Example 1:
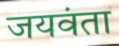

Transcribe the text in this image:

जयवंता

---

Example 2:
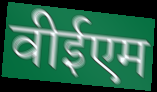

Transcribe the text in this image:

वीईएम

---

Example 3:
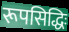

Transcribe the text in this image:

रूपसिद्धिः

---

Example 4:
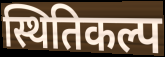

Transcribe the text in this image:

स्थितिकल्प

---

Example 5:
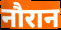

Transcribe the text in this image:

नौरान